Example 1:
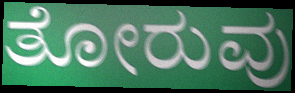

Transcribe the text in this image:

ತೋರುವು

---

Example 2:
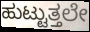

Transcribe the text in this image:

ಹುಟ್ಟುತ್ತಲೇ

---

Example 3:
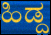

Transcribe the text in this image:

ಹಿಡ್ದ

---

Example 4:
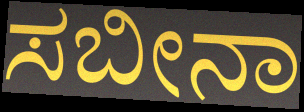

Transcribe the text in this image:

ಸಬೀನಾ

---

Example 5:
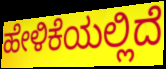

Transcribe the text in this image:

ಹೇಳಿಕೆಯಲ್ಲಿದೆ